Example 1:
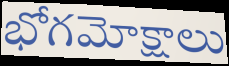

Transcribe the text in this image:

భోగమోక్షాలు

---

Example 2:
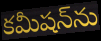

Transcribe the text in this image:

కమీషన్‌ను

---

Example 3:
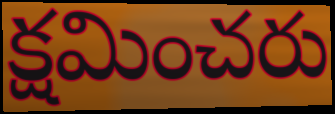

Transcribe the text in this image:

క్షమించరు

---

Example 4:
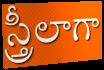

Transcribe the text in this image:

స్త్రీలాగా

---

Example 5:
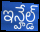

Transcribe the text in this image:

ఇన్హేల్డ్